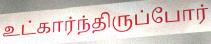
உட்கார்ந்திருப்போர்